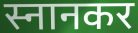
स्नानकर